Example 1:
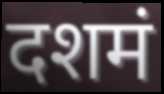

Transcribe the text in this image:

दशमं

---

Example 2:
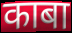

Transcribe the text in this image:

काबा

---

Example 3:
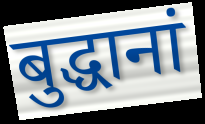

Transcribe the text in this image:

बुद्धानां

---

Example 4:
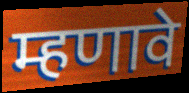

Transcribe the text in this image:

म्हणावे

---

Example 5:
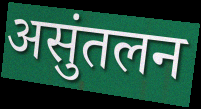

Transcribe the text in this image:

असुंतलन